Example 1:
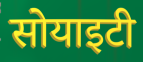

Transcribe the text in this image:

सोयाइटी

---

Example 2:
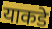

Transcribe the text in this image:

याकडे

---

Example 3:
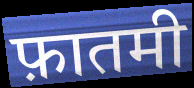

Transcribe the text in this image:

फ़ातमी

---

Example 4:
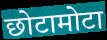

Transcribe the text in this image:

छोटामोटा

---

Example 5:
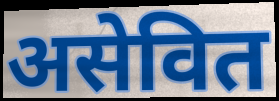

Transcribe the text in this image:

असेवित